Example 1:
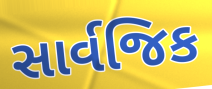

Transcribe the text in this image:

સાર્વજિક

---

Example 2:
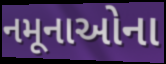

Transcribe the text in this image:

નમૂનાઓના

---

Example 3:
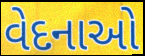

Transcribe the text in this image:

વેદનાઓ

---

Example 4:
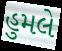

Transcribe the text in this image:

હુમલે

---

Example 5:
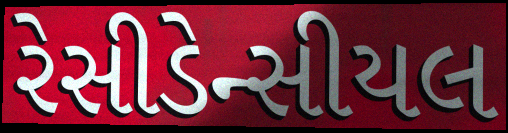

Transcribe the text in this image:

રેસીડેન્સીયલ